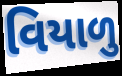
વિયાળુ